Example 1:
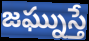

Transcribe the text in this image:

జఘ్నుస్తే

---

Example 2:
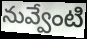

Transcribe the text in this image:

నువ్వేంటి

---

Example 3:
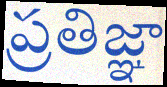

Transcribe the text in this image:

ప్రతిజ్ఞా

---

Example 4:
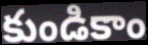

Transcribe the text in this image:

కుండికాం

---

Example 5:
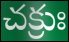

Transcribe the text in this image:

చక్రుః